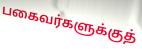
பகைவர்களுக்குத்